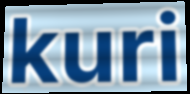
kuri